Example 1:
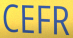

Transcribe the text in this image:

CEFR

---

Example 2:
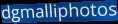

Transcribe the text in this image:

dgmalliphotos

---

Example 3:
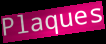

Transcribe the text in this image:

Plaques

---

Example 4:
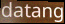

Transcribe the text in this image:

datang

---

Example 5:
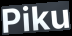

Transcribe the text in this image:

Piku